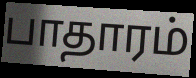
பாதாரம்